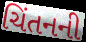
ચિંતનની